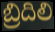
బ్రిదిలి